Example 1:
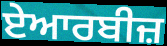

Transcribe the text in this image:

ਏਆਰਬੀਜ਼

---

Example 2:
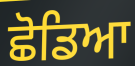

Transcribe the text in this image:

ਛੋਡਿਆ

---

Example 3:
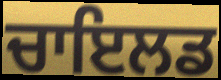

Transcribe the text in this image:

ਚਾਇਲਡ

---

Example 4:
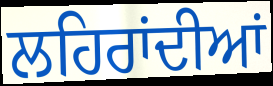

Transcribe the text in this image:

ਲਹਿਰਾਂਦੀਆਂ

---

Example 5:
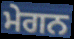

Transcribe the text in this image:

ਮੇਗਨ